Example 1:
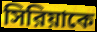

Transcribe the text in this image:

সিরিয়াকে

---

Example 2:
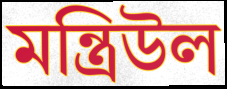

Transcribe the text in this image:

মন্ত্রিউল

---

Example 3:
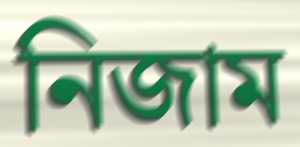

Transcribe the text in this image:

নিজাম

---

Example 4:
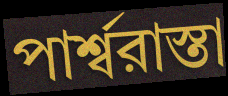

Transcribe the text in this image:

পার্শ্বরাস্তা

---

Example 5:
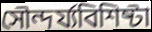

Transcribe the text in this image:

সৌন্দর্য্যবিশিষ্টা